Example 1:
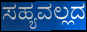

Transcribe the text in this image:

ಸಹ್ಯವಲ್ಲದ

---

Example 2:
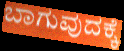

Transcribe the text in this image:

ಬಾಗುವುದಕ್ಕೆ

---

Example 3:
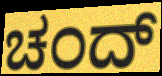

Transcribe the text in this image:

ಚಂದ್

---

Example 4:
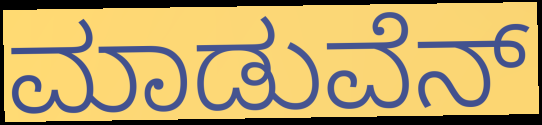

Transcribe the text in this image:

ಮಾಡುವೆನ್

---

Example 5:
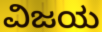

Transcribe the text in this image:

ವಿಜಯ